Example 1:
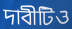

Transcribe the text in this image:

দাবীটিও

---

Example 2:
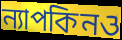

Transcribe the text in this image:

ন্যাপকিনও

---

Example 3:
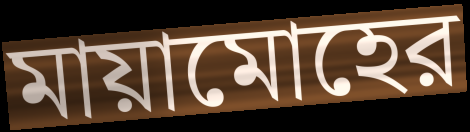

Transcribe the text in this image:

মায়ামোহের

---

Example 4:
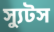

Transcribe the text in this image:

স্যুটস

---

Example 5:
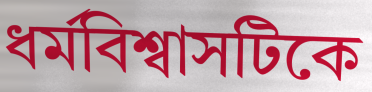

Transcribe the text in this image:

ধর্মবিশ্বাসটিকে